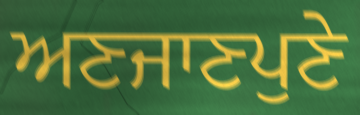
ਅਣਜਾਣਪੁਣੇ